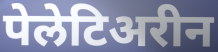
पेलेटिअरीन